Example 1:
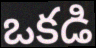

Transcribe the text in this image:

ఒకడి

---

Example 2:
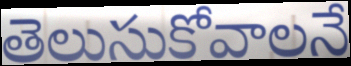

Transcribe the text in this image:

తెలుసుకోవాలనే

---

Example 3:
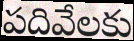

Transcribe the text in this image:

పదివేలకు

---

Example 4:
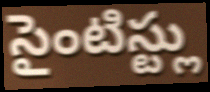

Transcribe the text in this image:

సైంటిస్ట్లు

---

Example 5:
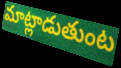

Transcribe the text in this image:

మాట్లాడుతుంట